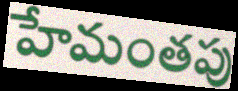
హేమంతపు